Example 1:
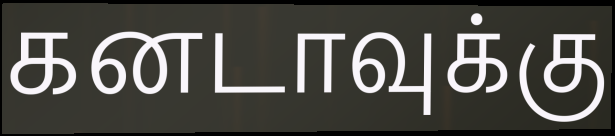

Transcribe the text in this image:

கனடாவுக்கு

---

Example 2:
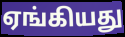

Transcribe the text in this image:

ஏங்கியது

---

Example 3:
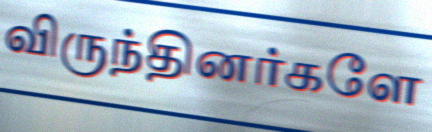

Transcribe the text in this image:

விருந்தினர்களே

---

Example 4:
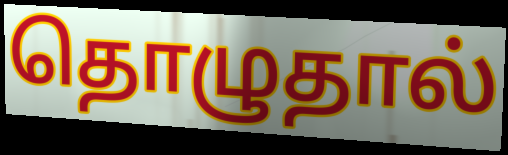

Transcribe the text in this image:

தொழுதால்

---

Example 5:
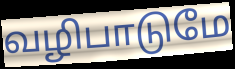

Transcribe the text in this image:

வழிபாடுமே